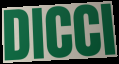
DICCI